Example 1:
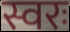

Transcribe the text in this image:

स्वरः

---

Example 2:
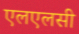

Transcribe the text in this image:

एलएलसी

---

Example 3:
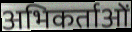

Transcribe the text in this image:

अभिकर्ताओं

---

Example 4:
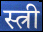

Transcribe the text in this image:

स्त्री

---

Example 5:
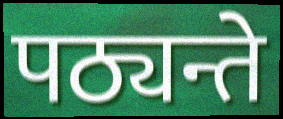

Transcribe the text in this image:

पठ्यन्ते